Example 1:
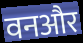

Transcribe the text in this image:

वनऔर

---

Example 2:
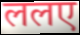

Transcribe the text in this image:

ललए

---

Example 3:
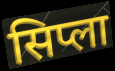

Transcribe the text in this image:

सिप्ला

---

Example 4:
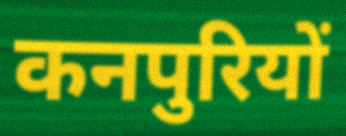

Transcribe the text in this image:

कनपुरियों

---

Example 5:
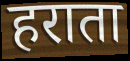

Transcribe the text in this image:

हराता